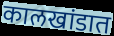
कालखांडात